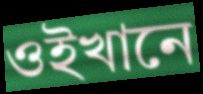
ওইখানে